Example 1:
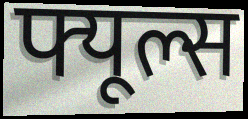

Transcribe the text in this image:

फ्यूल्स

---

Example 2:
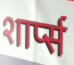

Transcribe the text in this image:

शार्प्स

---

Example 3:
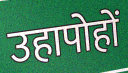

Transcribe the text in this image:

उहापोहों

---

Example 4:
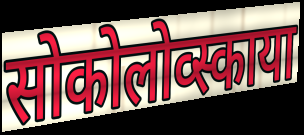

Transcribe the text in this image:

सोकोलोव्स्काया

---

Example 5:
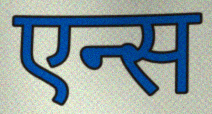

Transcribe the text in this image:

एन्स